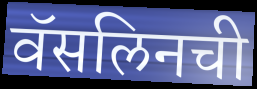
वॅसलिनची